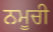
ਨਮੂਚੀ